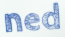
ned